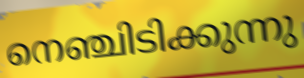
നെഞ്ചിടിക്കുന്നു